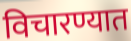
विचारण्यात